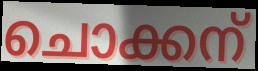
ചൊക്കന്